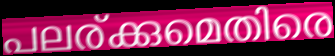
പലര്ക്കുമെതിരെ